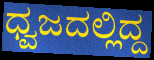
ಧ್ವಜದಲ್ಲಿದ್ದ